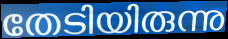
തേടിയിരുന്നു